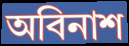
অবিনাশ